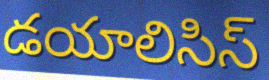
డయాలిసిస్